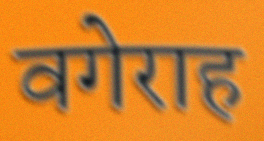
वगेराह